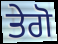
ਤੇਗੋ